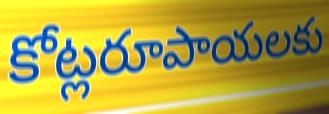
కోట్లరూపాయలకు